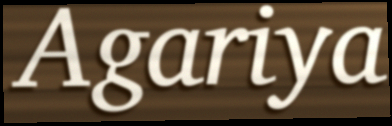
Agariya